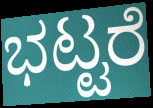
ಭಟ್ಟರೆ